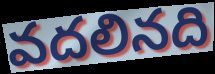
వదలినది